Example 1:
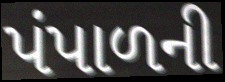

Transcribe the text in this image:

પંપાળની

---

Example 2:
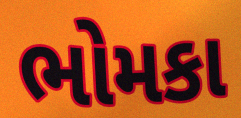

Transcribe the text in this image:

ભોમકા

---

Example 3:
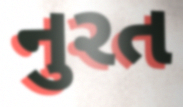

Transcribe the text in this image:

નુરત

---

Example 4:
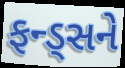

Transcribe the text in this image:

ફન્ડ્સને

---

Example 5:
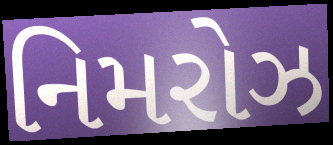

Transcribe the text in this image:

નિમરોઝ